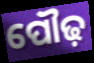
ପୌଢ଼